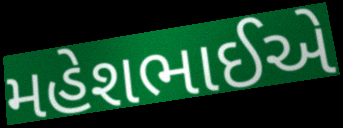
મહેશભાઈએ